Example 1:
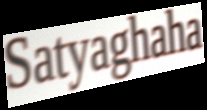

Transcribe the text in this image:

Satyaghaha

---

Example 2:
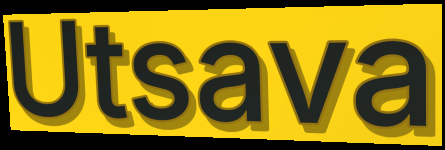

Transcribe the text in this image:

Utsava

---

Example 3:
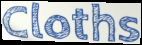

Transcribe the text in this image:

Cloths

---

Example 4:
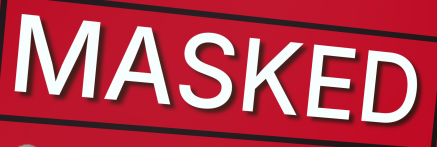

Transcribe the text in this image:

MASKED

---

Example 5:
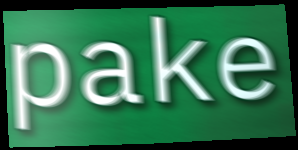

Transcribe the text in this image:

pake